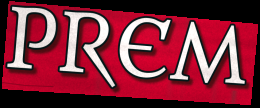
PREM